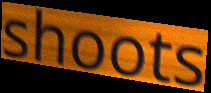
shoots